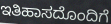
ಇತಿಹಾಸದೊಂದಿಗೆ